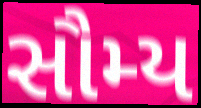
સૌમ્ય